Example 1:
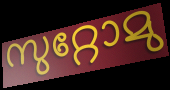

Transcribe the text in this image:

സുറ്റോമു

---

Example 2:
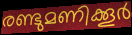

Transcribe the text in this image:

രണ്ടുമണിക്കൂർ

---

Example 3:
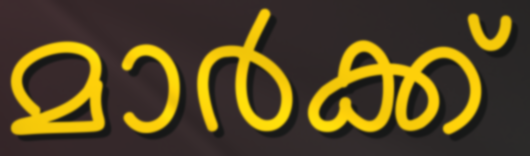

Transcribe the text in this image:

മാർക്ക്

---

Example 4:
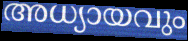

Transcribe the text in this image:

അധ്യായവും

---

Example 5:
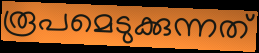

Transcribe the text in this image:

രൂപമെടുക്കുന്നത്